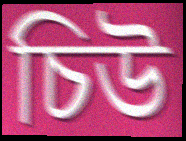
চিউ